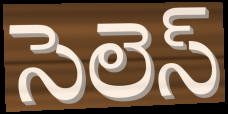
సెలెస్